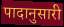
पादानुसारी